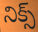
నిక్స్